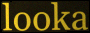
looka